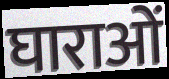
घाराओं